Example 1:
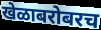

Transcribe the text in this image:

खेळाबरोबरच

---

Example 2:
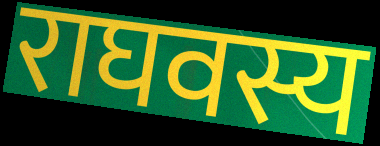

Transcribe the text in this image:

राघवस्य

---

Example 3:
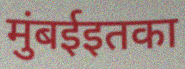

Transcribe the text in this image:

मुंबईइतका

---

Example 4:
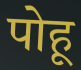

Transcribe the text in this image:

पोहू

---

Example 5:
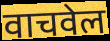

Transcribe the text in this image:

वाचवेल